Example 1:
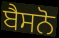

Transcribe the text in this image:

ਬੈਸਨੋ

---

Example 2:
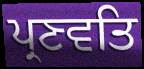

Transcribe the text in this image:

ਪ੍ਰਣਵਤਿ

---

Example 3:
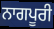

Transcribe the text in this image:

ਨਾਗਪੂਰੀ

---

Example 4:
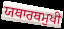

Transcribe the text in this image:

ਯਥਾਰਥਮੁਖੀ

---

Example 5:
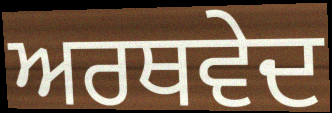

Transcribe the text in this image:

ਅਰਥਵੇਦ